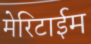
मेरिटाईम